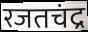
रजतचंद्र